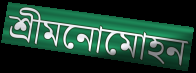
শ্রীমনোমোহন